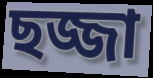
ছজ্জা